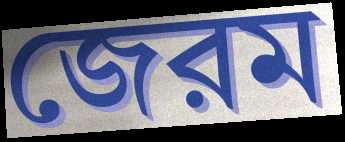
জেরম